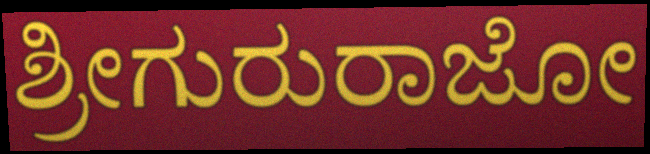
ಶ್ರೀಗುರುರಾಜೋ